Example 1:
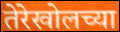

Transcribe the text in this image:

तेरेखोलच्या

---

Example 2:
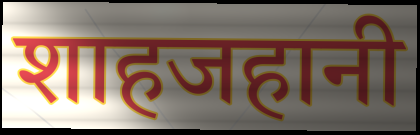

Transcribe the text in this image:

शाहजहानी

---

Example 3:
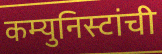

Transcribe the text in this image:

कम्युनिस्टांची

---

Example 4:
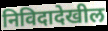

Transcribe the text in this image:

निविदादेखील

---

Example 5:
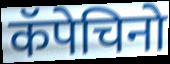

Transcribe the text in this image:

कॅपेचिनो